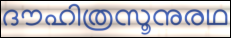
ദൗഹിത്രസൂനുരഥ